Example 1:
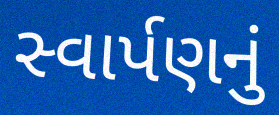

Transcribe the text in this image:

સ્વાર્પણનું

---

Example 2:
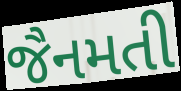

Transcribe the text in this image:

જૈનમતી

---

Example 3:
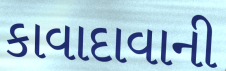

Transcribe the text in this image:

કાવાદાવાની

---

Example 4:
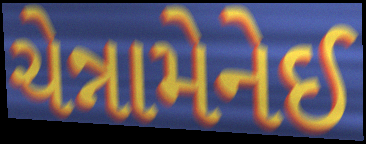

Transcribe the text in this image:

ચેન્નામેનેઈ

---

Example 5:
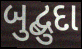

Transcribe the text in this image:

બુદ્બુદા